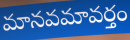
మానవమావర్తం